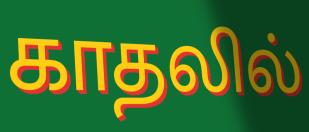
காதலில்